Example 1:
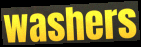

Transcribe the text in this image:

washers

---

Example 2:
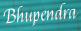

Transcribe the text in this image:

Bhupendra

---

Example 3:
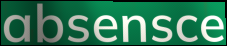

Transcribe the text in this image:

absensce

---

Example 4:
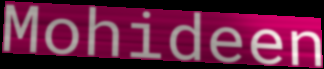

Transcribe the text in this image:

Mohideen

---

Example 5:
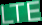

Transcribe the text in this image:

LTE